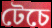
টেচে